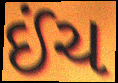
ઈંચ